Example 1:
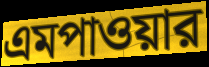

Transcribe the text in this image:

এমপাওয়ার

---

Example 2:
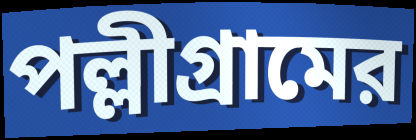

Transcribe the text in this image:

পল্লীগ্রামের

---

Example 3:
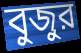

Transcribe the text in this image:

বুজুর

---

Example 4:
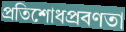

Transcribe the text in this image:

প্রতিশোধপ্রবণতা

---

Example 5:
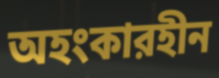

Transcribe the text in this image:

অহংকারহীন